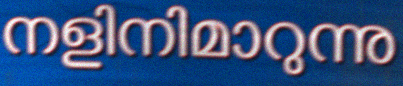
നളിനിമാറുന്നു